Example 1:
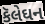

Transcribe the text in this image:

કૅલેઘન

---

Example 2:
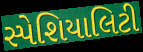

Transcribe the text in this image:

સ્પેશિયાલિટી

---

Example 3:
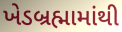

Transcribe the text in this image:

ખેડબ્રહ્મામાંથી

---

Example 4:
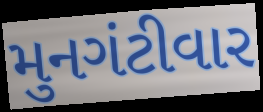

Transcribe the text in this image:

મુનગંટીવાર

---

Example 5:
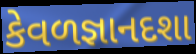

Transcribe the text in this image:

કેવળજ્ઞાનદશા